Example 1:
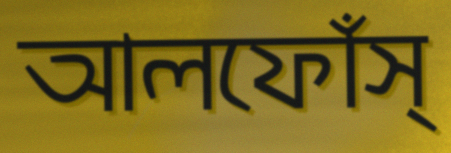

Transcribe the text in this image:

আলফোঁস্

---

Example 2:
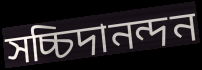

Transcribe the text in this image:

সচ্চিদানন্দন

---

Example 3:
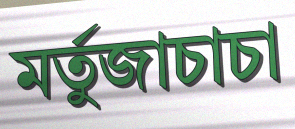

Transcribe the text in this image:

মর্তুজাচাচা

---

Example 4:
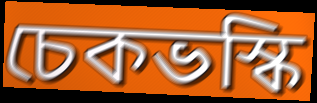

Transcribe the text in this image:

চেকভস্কি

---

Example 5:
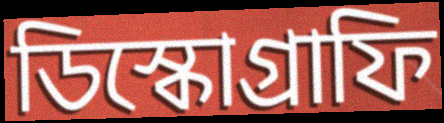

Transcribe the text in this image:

ডিস্কোগ্রাফি